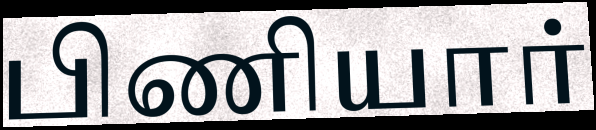
பிணியார்